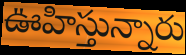
ఊహిస్తున్నారు